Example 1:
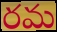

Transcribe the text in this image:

రమ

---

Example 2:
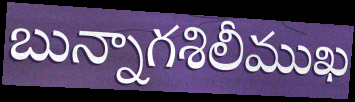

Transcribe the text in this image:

బున్నాగశిలీముఖ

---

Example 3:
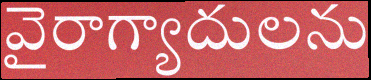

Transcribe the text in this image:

వైరాగ్యాదులను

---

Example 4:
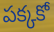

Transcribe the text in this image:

పక్కకో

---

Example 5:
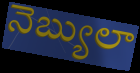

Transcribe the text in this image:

నెబ్యులా